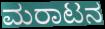
ಮರಾಟನ